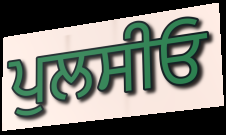
ਪੁਲਸੀਓ